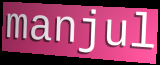
manjul